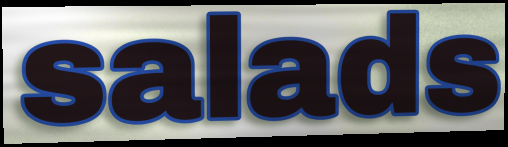
salads